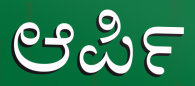
ಆರ್ಪಿ